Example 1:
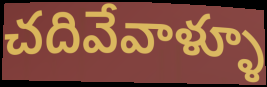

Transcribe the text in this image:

చదివేవాళ్ళూ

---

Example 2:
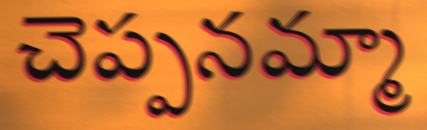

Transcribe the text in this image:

చెప్పనమ్మా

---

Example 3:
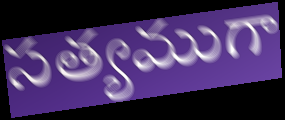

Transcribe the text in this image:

సత్యముగా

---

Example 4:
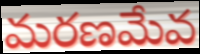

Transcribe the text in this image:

మరణమేవ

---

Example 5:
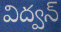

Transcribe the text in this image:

విద్వన్